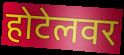
होटेलवर